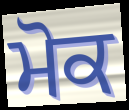
ਮੋਕ